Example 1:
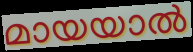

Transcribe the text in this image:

മായയാൽ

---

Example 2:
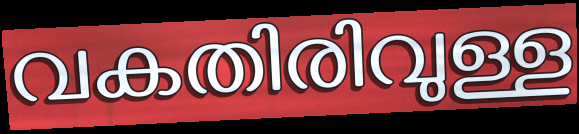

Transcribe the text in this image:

വകതിരിവുള്ള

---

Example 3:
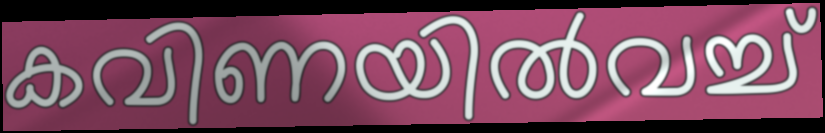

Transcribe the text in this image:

കവിണയിൽവച്ച്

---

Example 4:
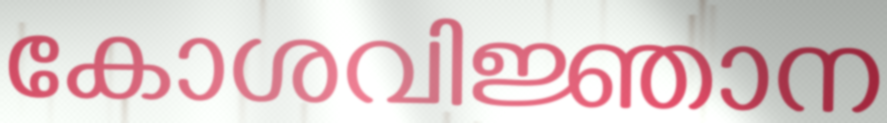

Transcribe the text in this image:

കോശവിജ്ഞാന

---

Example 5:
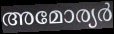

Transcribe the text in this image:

അമോര്യർ